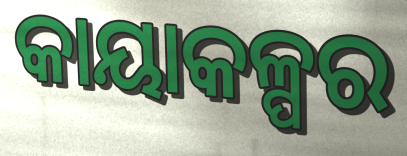
କାୟାକଳ୍ପର